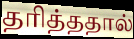
தரித்ததால்